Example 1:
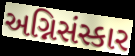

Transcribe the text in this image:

અગ્નિસંસ્કાર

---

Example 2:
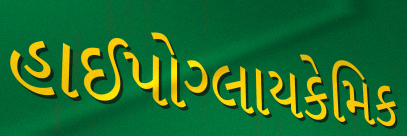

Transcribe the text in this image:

હાઈપોગ્લાયકેમિક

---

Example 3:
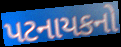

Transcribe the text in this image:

પટનાયકનો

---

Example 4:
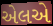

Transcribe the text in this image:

એલએ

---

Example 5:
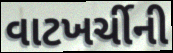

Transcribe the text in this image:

વાટખર્ચીની